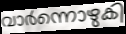
വാർന്നൊഴുകി